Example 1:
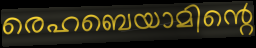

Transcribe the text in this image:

രെഹബെയാമിന്റെ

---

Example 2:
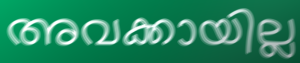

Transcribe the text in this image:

അവക്കായില്ല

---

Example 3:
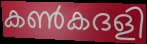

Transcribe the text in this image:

കൺകദളി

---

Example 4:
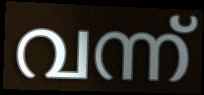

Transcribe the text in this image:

വന്ന്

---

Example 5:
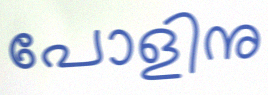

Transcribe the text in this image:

പോളിനു